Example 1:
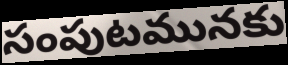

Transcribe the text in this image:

సంపుటమునకు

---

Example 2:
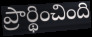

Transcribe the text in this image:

ప్రార్థించింది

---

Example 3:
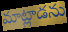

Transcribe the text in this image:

మాట్లాడను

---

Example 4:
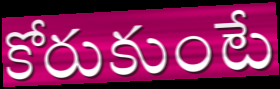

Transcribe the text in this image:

కోరుకుంటే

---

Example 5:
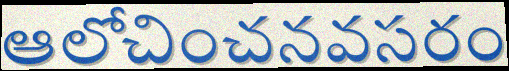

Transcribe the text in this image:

ఆలోచించనవసరం